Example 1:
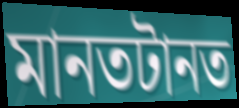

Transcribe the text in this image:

মানতটানত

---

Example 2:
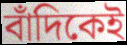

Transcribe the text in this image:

বাঁদিকেই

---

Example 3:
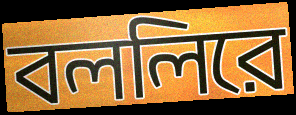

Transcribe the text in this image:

বললিরে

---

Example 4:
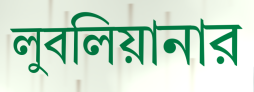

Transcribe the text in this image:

লুবলিয়ানার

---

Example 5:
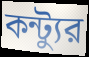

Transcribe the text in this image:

কন্ট্যুর